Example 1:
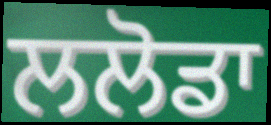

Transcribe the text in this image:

ਲਲੋਡਾ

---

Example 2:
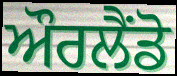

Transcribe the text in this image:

ਔਰਲੈਂਡੋ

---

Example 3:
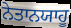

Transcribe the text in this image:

ਨੇਤਾਨਯਾਹੂ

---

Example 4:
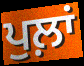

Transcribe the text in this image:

ਪੁਲ਼ਾਂ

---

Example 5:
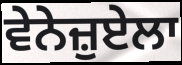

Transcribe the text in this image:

ਵੇਨੇਜ਼ੁਏਲਾ